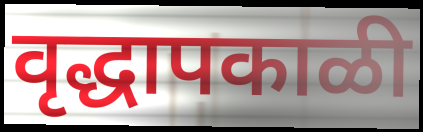
वृद्धापकाळी